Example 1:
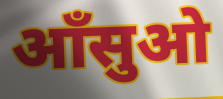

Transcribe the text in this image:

आँसुओ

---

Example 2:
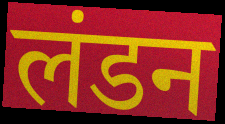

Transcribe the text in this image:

लंडन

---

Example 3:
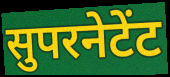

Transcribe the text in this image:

सुपरनेटेंट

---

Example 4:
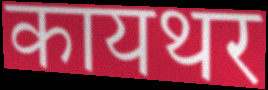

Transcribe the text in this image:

कायथर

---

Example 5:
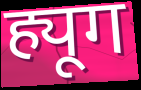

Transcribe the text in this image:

ह्यूग